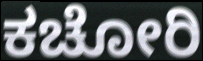
ಕಚೋರಿ